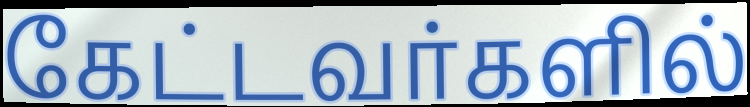
கேட்டவர்களில்